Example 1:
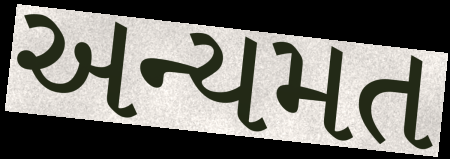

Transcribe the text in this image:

અન્યમત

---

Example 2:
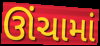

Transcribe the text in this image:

ઊંચામાં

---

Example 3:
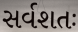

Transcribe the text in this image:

સર્વશતઃ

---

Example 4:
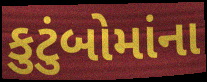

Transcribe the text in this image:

કુટુંબોમાંના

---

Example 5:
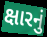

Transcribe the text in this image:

ક્ષારનું